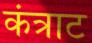
कंत्राट